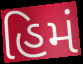
હિમં